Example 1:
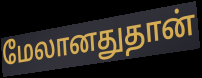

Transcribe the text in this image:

மேலானதுதான்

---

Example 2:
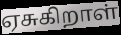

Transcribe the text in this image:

ஏசுகிறாள்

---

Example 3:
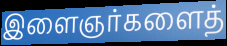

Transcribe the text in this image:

இளைஞர்களைத்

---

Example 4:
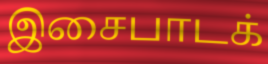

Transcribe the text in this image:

இசைபாடக்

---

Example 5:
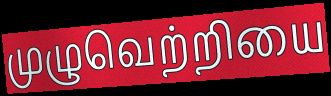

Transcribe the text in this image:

முழுவெற்றியை